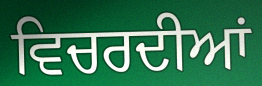
ਵਿਚਰਦੀਆਂ